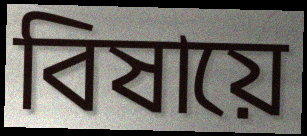
বিষায়ে